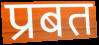
प्रबत